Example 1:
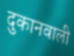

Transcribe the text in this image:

दुकानवाली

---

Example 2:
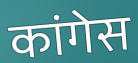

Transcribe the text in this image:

कांगेस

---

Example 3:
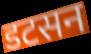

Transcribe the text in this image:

डटसन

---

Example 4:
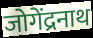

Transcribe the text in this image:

जोगेंद्रनाथ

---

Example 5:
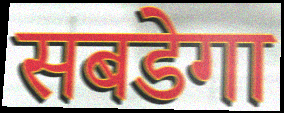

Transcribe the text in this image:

सबडेगा